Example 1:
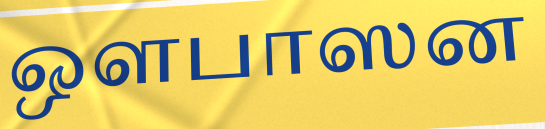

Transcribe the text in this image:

ஒளபாஸன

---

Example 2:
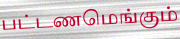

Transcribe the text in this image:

பட்டணமெங்கும்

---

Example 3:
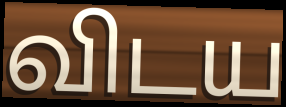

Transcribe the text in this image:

விடய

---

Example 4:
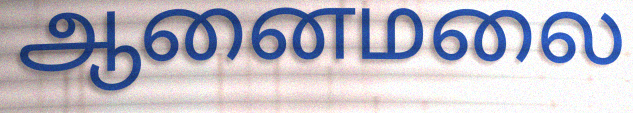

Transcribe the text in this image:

ஆனைமலை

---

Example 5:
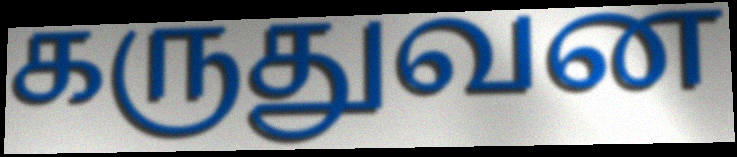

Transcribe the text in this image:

கருதுவன